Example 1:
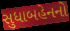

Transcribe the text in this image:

સુધાબહેનનો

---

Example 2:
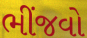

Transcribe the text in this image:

ભીંજવો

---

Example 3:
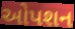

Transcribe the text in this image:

ઓપશન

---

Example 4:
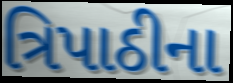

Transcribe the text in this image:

ત્રિપાઠીના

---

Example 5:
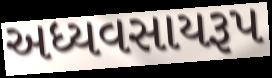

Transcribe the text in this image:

અધ્યવસાયરૂપ